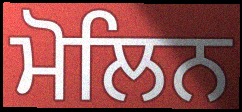
ਮੋਲਿਨ